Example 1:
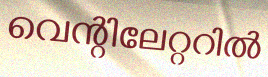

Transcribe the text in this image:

വെന്റിലേറ്ററിൽ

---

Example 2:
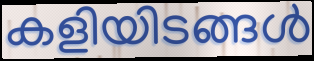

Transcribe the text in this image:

കളിയിടങ്ങൾ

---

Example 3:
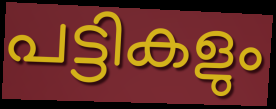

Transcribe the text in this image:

പട്ടികളും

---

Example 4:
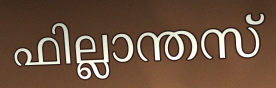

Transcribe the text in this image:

ഫില്ലാന്തസ്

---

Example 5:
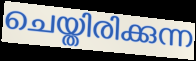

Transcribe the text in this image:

ചെയ്തിരിക്കുന്ന